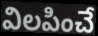
విలపించే